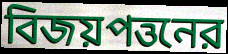
বিজয়পত্তনের